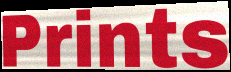
Prints